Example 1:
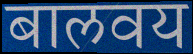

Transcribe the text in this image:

बालवय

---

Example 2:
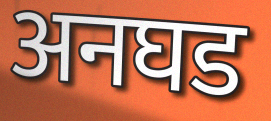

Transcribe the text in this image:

अनघड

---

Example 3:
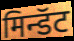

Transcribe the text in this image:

मिन्डॅट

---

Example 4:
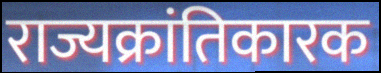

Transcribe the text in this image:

राज्यक्रांतिकारक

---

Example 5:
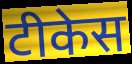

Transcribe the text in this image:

टीकेस